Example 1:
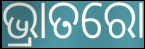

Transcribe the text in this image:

ଭ୍ରାତରୋ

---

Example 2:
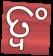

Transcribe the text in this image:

ତ୍ୱଂ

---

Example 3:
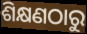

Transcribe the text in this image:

ଶିକ୍ଷଣଠାରୁ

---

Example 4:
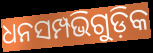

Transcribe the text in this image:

ଧନସମ୍ପଭିଗୁଡ଼ିକ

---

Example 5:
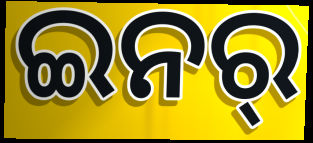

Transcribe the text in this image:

ଇନର୍